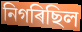
নিগৰিছিল